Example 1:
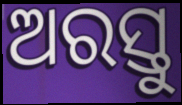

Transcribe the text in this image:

ଅରସ୍ତୁ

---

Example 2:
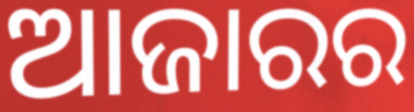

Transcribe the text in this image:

ଆଜାରର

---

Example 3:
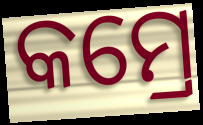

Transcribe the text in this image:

କମ୍ରେ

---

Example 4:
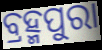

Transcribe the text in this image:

ବ୍ରହ୍ମପୁରା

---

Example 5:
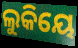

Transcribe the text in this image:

ଲୁକିୟେ